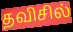
தவிசில்